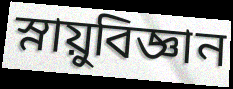
স্নায়ুবিজ্ঞান